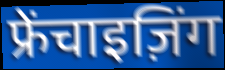
फ्रेंचाइज़िंग